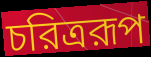
চরিত্ররূপ